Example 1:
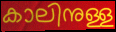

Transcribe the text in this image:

കാലിനുള്ള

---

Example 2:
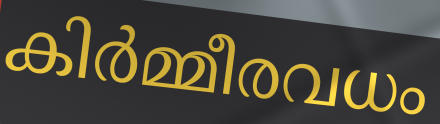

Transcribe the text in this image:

കിർമ്മീരവധം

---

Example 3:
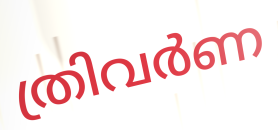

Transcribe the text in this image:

ത്രിവർണ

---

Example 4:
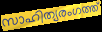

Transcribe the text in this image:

സാഹിത്യരംഗത്ത്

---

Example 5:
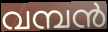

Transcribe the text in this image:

വമ്പൻ